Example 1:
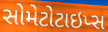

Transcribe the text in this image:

સોમેટોટાઇપ્સ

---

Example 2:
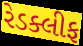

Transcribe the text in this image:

રેડક્લીફ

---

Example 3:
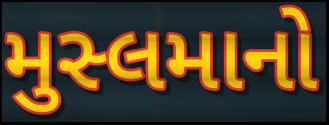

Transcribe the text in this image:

મુસ્લમાનો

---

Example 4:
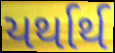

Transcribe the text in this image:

યર્થાર્થ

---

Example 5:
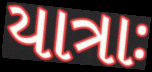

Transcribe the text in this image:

યાત્રાઃ